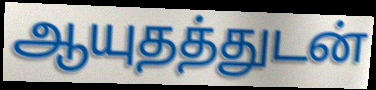
ஆயுதத்துடன்